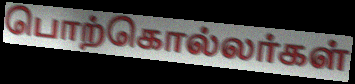
பொற்கொல்லர்கள்